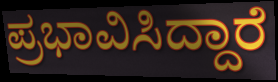
ಪ್ರಭಾವಿಸಿದ್ದಾರೆ